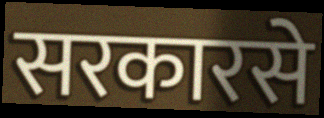
सरकारसे